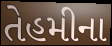
તેહમીના